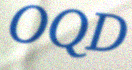
OQD